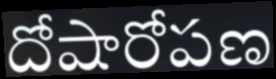
దోషారోపణ